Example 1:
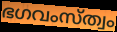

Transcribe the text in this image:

ഭഗവംസ്ത്വം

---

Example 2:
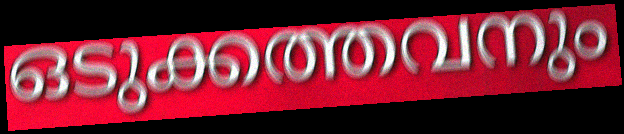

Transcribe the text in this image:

ഒടുക്കത്തവനും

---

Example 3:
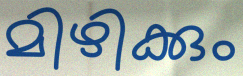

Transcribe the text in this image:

മിഴിക്കും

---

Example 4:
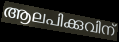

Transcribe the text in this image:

ആലപിക്കുവിന്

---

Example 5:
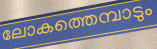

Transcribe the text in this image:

ലോകത്തെമ്പാടും